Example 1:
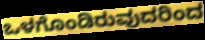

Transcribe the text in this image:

ಒಳಗೊಂಡಿರುವುದರಿಂದ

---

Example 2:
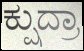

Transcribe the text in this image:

ಕ್ಷುದ್ರಾ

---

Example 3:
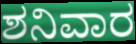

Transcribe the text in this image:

ಶನಿವಾರ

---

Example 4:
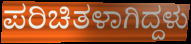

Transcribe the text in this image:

ಪರಿಚಿತಳಾಗಿದ್ದಳು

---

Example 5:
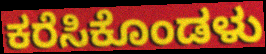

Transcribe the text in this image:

ಕರೆಸಿಕೊಂಡಳು